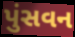
પુંસવન